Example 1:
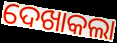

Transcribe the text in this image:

ଦେଖାକଲା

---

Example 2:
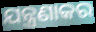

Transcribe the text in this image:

ଯନ୍ତ୍ରଣାକର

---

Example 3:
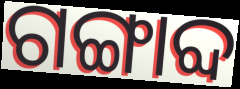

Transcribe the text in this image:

ଗଙ୍ଗାବ୍ଦ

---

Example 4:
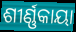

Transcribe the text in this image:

ଶୀର୍ଣ୍ଣକାୟା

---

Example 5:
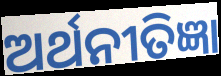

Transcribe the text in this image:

ଅର୍ଥନୀତିଜ୍ଞା